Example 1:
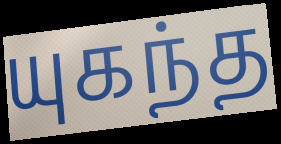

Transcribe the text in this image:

யுகந்த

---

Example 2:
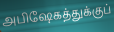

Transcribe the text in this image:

அபிஷேகத்துக்குப்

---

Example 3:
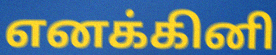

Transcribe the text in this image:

எனக்கினி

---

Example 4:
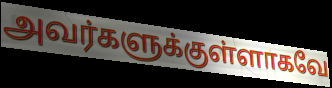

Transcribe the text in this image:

அவர்களுக்குள்ளாகவே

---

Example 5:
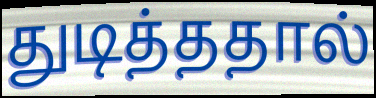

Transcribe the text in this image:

துடித்ததால்